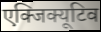
एक्जिक्यूटिव